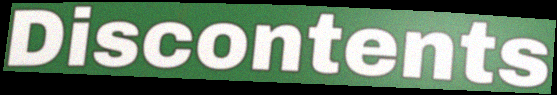
Discontents